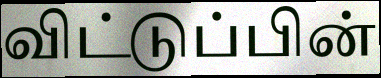
விட்டுப்பின்